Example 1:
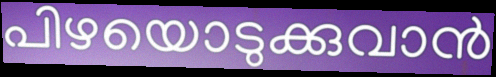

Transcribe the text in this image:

പിഴയൊടുക്കുവാൻ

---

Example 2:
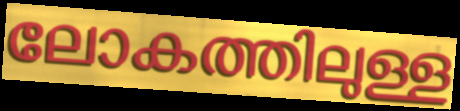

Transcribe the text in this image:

ലോകത്തിലുള്ള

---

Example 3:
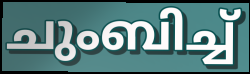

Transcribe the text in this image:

ചുംബിച്ച്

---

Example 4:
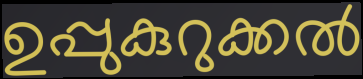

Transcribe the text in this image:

ഉപ്പുകുറുക്കൽ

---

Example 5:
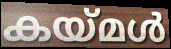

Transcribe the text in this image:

കയ്മൾ